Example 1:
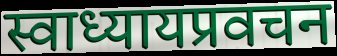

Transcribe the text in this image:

स्वाध्यायप्रवचन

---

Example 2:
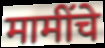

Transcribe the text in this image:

मामींचे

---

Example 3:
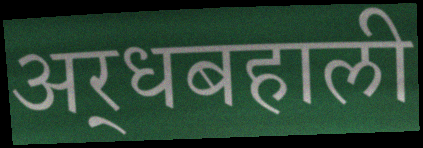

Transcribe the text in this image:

अर्धबहाली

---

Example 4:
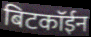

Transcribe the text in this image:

बिटकॉईन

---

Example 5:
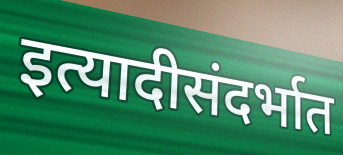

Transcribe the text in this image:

इत्यादीसंदर्भात